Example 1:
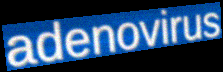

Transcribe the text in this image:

adenovirus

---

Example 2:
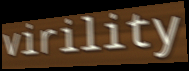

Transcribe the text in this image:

virility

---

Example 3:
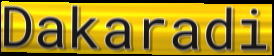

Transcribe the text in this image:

Dakaradi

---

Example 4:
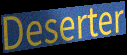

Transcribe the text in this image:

Deserter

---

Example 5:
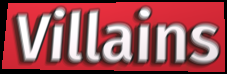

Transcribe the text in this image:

Villains